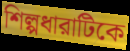
শিল্পধারাটিকে